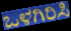
ಒಳಗಿರಿಸಿ